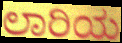
ಲಾರಿಯ